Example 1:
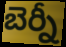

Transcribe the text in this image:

బెర్నీ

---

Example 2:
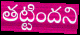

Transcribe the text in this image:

తట్టిందని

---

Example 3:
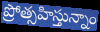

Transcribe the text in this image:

ప్రోత్సహిస్తున్నాం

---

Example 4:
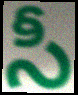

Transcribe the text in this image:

సీ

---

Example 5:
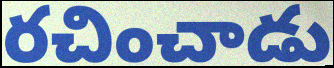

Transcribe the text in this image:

రచించాడు